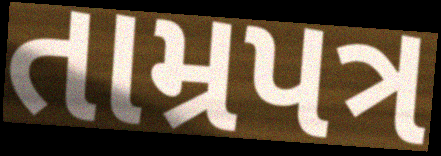
તામ્રપત્ર